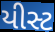
યીસ્ટ